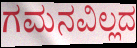
ಗಮನವಿಲ್ಲದ